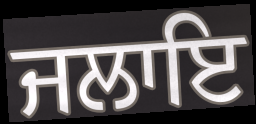
ਜਲਾਇ